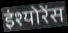
इंश्योरेंस